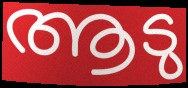
ആടു